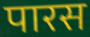
पारस